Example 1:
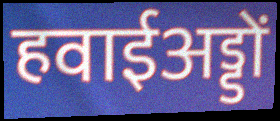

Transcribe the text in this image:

हवाईअड्डों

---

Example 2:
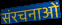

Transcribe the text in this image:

संरचनाओं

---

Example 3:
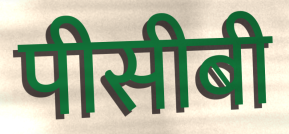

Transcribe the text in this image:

पीसीबी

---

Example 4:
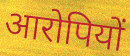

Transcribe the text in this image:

आरोपियों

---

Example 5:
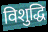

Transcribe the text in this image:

विशुद्धि